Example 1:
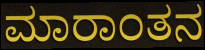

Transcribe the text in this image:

ಮಾರಾಂತನ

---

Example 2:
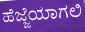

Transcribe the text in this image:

ಹೆಜ್ಜೆಯಾಗಲಿ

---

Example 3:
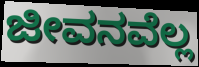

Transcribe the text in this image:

ಜೀವನವೆಲ್ಲ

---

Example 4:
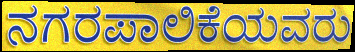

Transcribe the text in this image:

ನಗರಪಾಲಿಕೆಯವರು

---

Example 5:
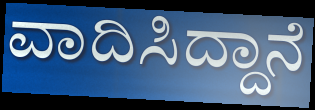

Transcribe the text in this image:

ವಾದಿಸಿದ್ದಾನೆ